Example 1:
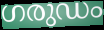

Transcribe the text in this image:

ഗരുഡം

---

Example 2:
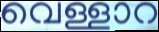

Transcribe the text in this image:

വെള്ളാറ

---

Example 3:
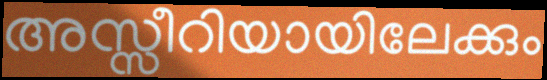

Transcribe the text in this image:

അസ്സീറിയായിലേക്കും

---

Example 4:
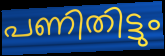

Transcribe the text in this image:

പണിതിട്ടും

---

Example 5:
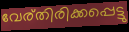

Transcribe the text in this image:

വേര്തിരിക്കപ്പെട്ടു